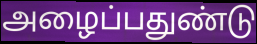
அழைப்பதுண்டு